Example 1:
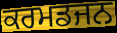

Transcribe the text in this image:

ਕਰਮਡਜਨ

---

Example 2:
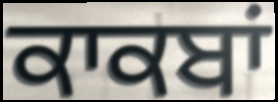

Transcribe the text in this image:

ਕਾਕਬਾਂ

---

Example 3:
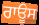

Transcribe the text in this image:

ਰਾਊਸ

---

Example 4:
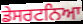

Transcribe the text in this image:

ਡੇਸਰਟਨਿਆ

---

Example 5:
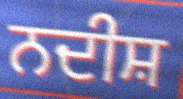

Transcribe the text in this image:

ਨਦੀਸ਼